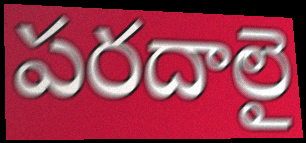
పరదాలై